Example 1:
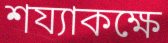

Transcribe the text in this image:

শয্যাকক্ষে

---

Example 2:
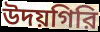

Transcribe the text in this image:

উদয়গিরি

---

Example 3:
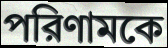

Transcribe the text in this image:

পরিণামকে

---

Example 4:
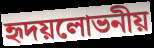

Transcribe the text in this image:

হৃদয়লোভনীয়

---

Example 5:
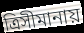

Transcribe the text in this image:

ত্রিসীমানায়